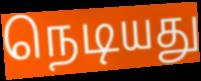
நெடியது